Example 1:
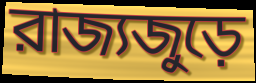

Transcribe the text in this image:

রাজ্যজুড়ে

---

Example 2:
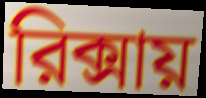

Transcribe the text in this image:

রিক্সায়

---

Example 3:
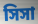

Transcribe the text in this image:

সিসা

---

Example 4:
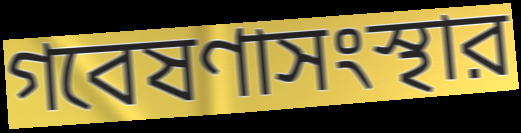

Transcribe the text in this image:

গবেষণাসংস্থার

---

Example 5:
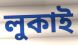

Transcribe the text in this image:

লুকাই